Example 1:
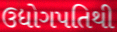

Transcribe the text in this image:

ઉદ્યોગપતિથી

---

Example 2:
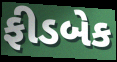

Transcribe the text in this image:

ફીડબેક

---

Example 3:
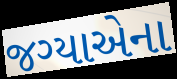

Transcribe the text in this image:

જગ્યાએના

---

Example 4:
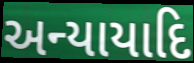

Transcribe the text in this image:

અન્યાયાદિ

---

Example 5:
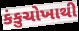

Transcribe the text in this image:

કંકુચોખાથી